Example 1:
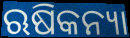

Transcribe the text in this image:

ଋଷିକନ୍ୟା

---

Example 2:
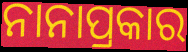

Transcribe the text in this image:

ନାନାପ୍ରକାର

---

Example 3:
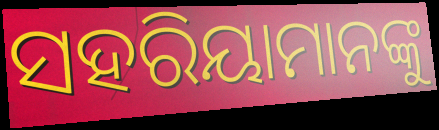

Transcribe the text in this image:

ସହରିୟାମାନଙ୍କୁ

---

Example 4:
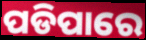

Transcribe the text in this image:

ପଡିପାରେ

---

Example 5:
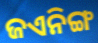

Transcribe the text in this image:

ଜଏନିଙ୍ଗ